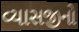
વ્યાસજીનો